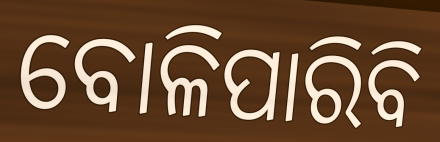
ବୋଳିପାରିବି